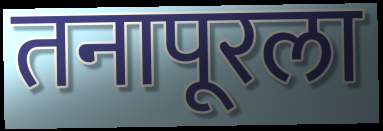
तनापूरला